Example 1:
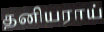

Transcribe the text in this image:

தனியராய்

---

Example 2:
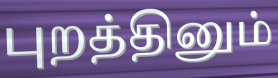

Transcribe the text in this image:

புறத்தினும்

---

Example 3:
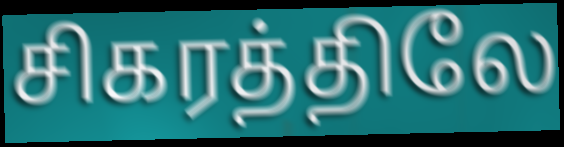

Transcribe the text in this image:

சிகரத்திலே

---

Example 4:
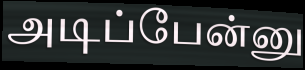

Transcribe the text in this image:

அடிப்பேன்னு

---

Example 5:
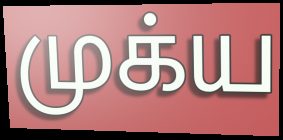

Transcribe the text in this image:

முக்ய